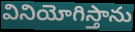
వినియోగిస్తాను